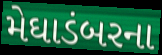
મેઘાડંબરના